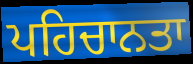
ਪਹਿਚਾਨਤਾ